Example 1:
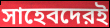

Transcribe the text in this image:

সাহেবদেরই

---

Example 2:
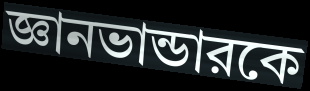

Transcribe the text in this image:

জ্ঞানভান্ডারকে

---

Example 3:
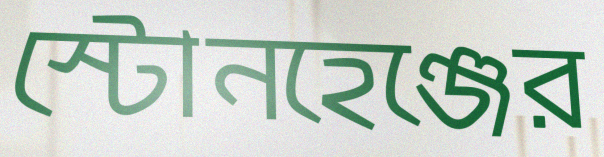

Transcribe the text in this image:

স্টোনহেঞ্জের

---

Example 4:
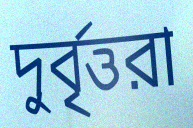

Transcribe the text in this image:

দুর্বৃত্তরা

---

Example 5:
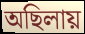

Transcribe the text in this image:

অছিলায়